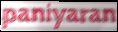
paniyaran